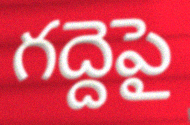
గద్దెపై